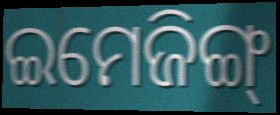
ଇମେଜିଙ୍ଗ୍